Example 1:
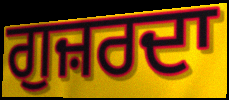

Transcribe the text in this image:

ਗੁਜ਼ਰਦਾ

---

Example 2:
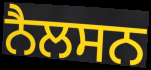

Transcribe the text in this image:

ਨੈਲਸਨ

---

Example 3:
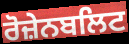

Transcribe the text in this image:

ਰੋਜ਼ੇਨਬਲਿਟ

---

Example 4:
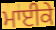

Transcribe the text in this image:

ਮਾਈਕੇ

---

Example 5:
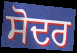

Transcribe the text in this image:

ਸੋਦਰ